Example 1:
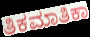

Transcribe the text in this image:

ತಿಕಮಾತಿಕಾ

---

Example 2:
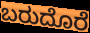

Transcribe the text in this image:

ಬರುದೊರೆ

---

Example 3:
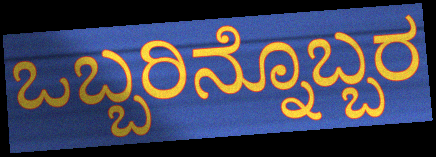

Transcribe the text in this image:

ಒಬ್ಬರಿನ್ನೊಬ್ಬರ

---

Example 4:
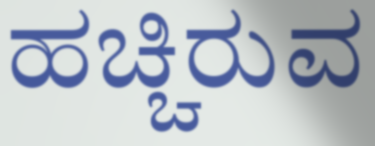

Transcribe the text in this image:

ಹಚ್ಚಿರುವ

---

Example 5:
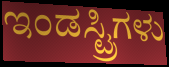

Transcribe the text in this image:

ಇಂಡಸ್ಟ್ರಿಗಳು